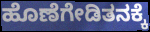
ಹೊಣೆಗೇಡಿತನಕ್ಕೆ